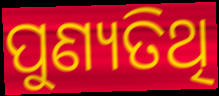
ପୁଣ୍ୟତିଥି